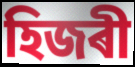
হিজৰী